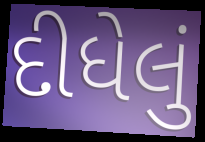
દીધેલું